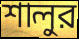
শালুর